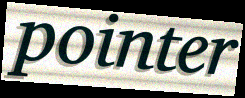
pointer